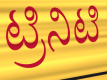
ಟ್ರಿನಿಟಿ